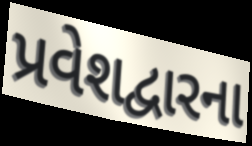
પ્રવેશદ્વારના